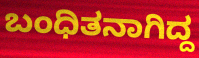
ಬಂಧಿತನಾಗಿದ್ದ